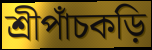
শ্রীপাঁচকড়ি